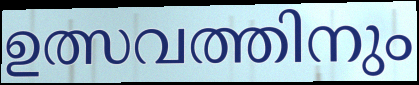
ഉത്സവത്തിനും